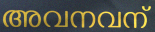
അവനവന്